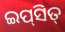
ଇପ୍‌ସିତ୍